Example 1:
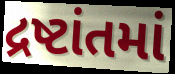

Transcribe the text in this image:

દ્રષ્ટાંતમાં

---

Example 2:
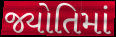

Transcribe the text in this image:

જ્યોતિમાં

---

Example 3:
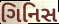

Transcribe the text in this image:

ગિનિસ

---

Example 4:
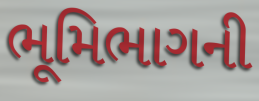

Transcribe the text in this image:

ભૂમિભાગની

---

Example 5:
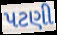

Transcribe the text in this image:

પટણી